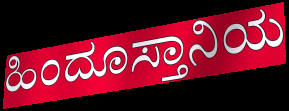
ಹಿಂದೂಸ್ತಾನಿಯ